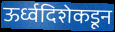
ऊर्ध्वदिशेकडून